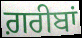
ਗ਼ਰੀਬਾਂ